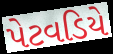
પેટવડિયે